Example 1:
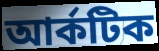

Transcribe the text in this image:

আর্কটিক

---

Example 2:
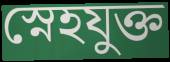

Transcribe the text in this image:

স্নেহযুক্ত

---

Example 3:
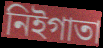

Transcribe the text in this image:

নিইগাতা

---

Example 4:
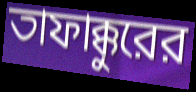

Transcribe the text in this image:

তাফাক্কুরের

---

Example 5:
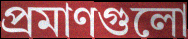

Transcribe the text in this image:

প্রমাণগুলো